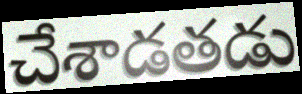
చేశాడతడు